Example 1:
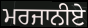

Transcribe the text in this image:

ਮਰਜਾਨੀਏ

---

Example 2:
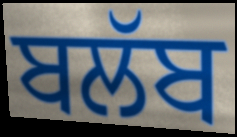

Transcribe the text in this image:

ਬਲੱਬ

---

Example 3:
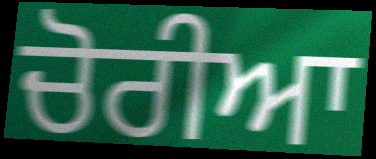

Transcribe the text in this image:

ਚੋਰੀਆ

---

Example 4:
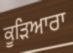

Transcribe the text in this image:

ਕੂੜਿਆਰਾ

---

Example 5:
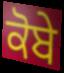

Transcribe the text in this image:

ਕੋਬੇ